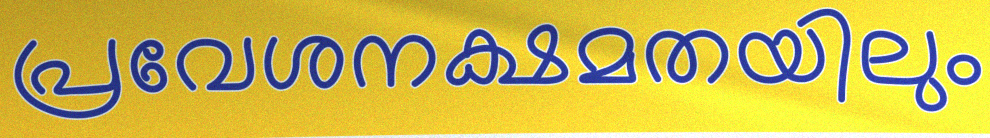
പ്രവേശനക്ഷമതയിലും